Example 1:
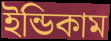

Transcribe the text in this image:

ইন্ডিকাম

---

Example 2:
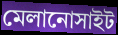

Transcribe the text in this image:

মেলানোসাইট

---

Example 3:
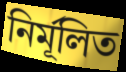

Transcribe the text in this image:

নির্মূলিত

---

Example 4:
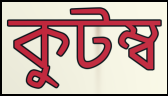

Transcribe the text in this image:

কুটম্ব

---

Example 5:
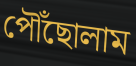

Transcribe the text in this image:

পৌঁছোলাম